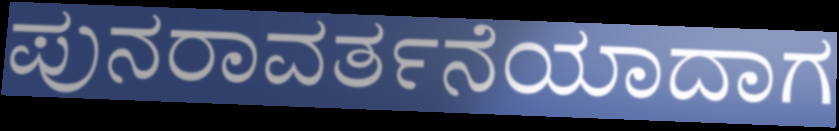
ಪುನರಾವರ್ತನೆಯಾದಾಗ